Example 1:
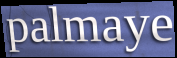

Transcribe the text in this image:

palmaye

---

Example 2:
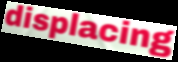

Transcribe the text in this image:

displacing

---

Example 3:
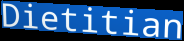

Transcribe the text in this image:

Dietitian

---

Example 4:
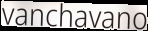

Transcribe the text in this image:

vanchavano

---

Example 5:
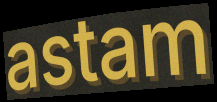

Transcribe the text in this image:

astam